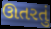
ઊતરતું